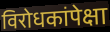
विरोधकांपेक्षा